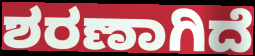
ಶರಣಾಗಿದೆ